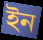
ইন